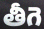
తీగె